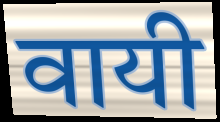
वायी